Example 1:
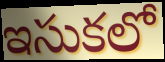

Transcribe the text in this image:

ఇసుకలో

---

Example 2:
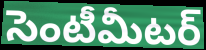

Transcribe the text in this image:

సెంటీమీటర్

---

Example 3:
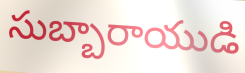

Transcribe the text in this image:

సుబ్బారాయుడి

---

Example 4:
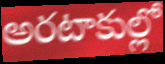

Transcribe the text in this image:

అరటాకుల్లో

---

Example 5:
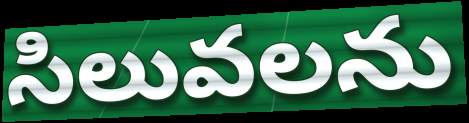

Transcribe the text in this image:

సిలువలను